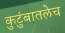
कुटुंबातलेच